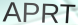
APRT